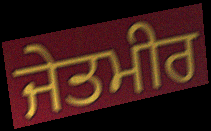
ਜੇਤਮੀਰ